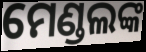
ମେଣ୍ଡଲଙ୍କ